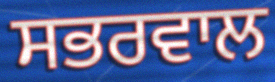
ਸਭਰਵਾਲ